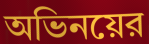
অভিনয়ের